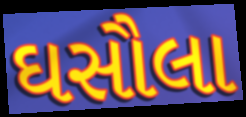
ઘસૌલા